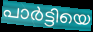
പാർട്ടിയെ